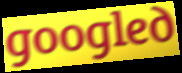
googled